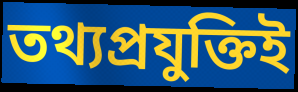
তথ্যপ্রযুক্তিই